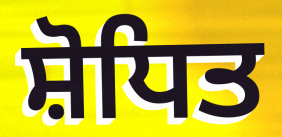
ਸ਼ੋਧਿਤ